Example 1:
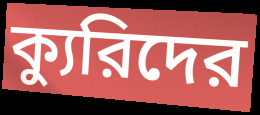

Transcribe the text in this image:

ক্যুরিদের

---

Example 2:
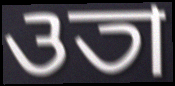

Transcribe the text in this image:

ওতা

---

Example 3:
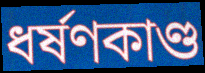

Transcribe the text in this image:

ধর্ষণকাণ্ড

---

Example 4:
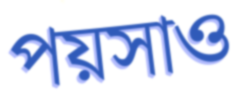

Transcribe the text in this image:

পয়সাও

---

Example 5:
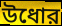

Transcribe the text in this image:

উধোর